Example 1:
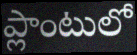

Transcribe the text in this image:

ప్లాంటులో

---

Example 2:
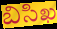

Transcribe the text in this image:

బిసిఖ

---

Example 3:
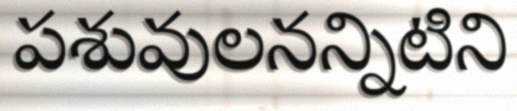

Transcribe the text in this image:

పశువులనన్నిటిని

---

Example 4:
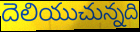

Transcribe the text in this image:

దెలియుచున్నది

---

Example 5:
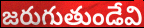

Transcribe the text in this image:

జరుగుతుండేవి